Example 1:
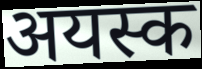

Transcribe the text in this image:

अयस्क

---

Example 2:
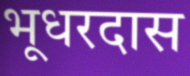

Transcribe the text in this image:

भूधरदास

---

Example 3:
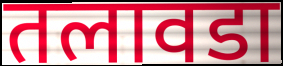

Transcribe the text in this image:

तलावडा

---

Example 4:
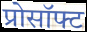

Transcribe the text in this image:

प्रोसॉफ्ट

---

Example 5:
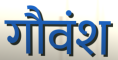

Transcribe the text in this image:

गौवंश